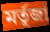
মর্তূজা